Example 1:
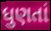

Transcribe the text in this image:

ધુણતાં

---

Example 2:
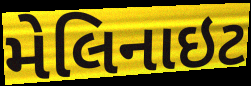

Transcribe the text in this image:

મેલિનાઇટ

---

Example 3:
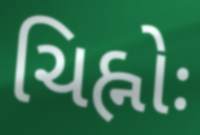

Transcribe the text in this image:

ચિહ્નોઃ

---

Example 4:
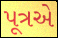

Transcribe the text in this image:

પૂત્રએ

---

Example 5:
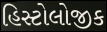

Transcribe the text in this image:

હિસ્ટોલોજીક